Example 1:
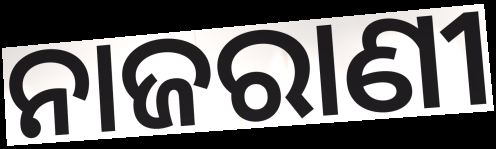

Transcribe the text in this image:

ନାଜରାଣୀ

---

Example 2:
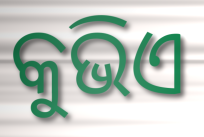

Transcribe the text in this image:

କୁଭିଏ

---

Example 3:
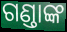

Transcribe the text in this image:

ଗଣ୍ଡାଙ୍କ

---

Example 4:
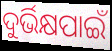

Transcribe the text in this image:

ଦୁର୍ଭିକ୍ଷପାଇଁ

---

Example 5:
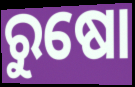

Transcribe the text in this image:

ରୁଷୋ